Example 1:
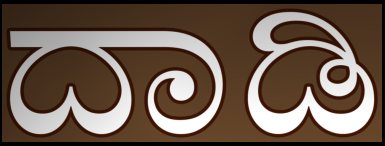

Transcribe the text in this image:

ದಾಡಿ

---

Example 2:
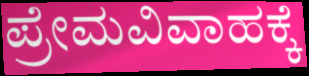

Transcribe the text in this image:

ಪ್ರೇಮವಿವಾಹಕ್ಕೆ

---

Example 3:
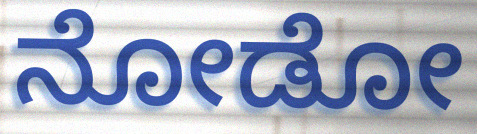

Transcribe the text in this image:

ನೋಡೋ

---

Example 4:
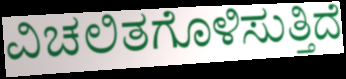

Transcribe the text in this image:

ವಿಚಲಿತಗೊಳಿಸುತ್ತಿದೆ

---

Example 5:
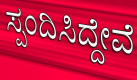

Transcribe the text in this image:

ಸ್ಪಂದಿಸಿದ್ದೇವೆ